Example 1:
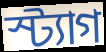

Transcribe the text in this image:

স্ট্যাগ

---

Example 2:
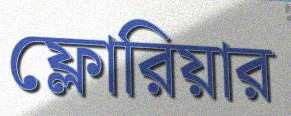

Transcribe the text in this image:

ফ্লোরিয়ার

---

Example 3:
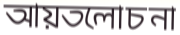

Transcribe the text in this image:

আয়তলোচনা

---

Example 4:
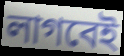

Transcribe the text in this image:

লাগবেই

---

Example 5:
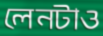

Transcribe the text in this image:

লেনটাও